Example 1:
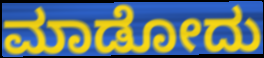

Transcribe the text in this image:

ಮಾಡೋದು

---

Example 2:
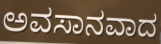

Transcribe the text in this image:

ಅವಸಾನವಾದ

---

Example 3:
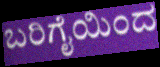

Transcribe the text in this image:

ಬರಿಗೈಯಿಂದ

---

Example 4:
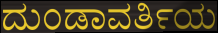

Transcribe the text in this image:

ದುಂಡಾವರ್ತಿಯ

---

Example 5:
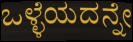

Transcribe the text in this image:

ಒಳ್ಳೆಯದನ್ನೇ